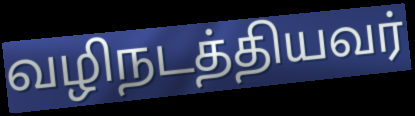
வழிநடத்தியவர்